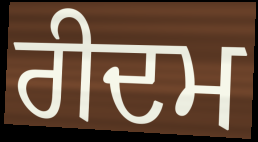
ਰੀਦਮ